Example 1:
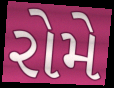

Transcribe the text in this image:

રોમે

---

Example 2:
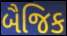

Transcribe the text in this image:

બૈજિક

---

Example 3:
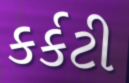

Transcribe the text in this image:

કર્કટી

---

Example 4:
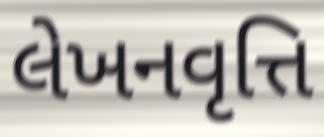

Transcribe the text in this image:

લેખનવૃત્તિ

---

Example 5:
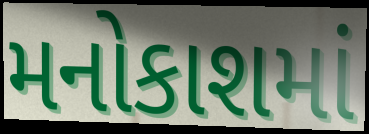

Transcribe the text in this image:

મનોકાશમાં